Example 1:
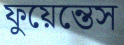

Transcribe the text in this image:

ফুয়েন্তেস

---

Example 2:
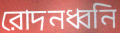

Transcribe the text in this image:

রোদনধ্বনি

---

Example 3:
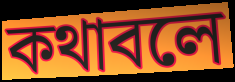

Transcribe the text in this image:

কথাবলে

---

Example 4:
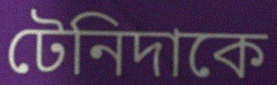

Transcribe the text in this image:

টেনিদাকে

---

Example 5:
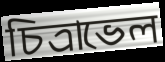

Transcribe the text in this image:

চিত্রাভেল